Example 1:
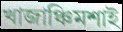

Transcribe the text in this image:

খাজাঞ্চিমশাই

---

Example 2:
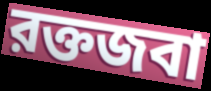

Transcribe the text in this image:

রক্তজবা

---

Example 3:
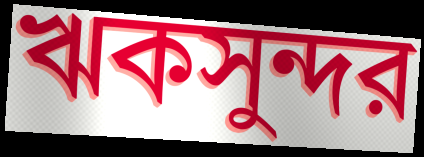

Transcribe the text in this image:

ঋকসুন্দর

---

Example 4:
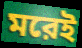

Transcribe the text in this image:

মরেই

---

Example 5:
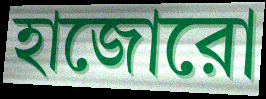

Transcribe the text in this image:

হাজোরো